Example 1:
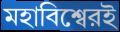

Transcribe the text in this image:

মহাবিশ্বেরই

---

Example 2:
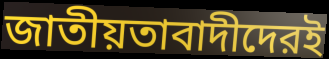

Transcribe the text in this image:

জাতীয়তাবাদীদেরই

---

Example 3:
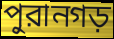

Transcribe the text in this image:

পুরানগড়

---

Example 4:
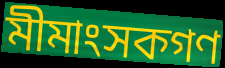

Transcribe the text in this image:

মীমাংসকগণ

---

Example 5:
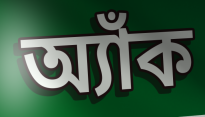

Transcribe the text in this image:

অ্যাঁক